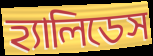
হ্যালিডেস